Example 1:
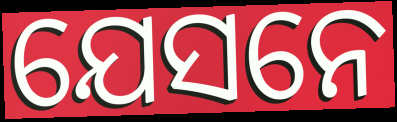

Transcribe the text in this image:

ଯେସନେ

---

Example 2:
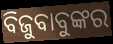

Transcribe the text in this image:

ବିଜୁବାବୁଙ୍କର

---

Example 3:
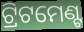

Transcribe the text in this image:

ଟ୍ରିଟମେଣ୍ଟ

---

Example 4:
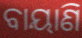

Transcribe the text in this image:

ବାୟାଣି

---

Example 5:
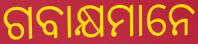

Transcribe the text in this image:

ଗବାକ୍ଷମାନେ